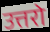
उत्तरो